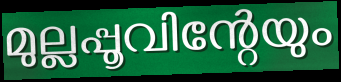
മുല്ലപ്പൂവിന്റേയും